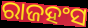
ରାଜହଂସ